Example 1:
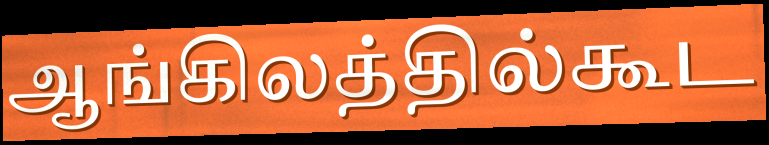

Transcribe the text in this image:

ஆங்கிலத்தில்கூட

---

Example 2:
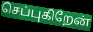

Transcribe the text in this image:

செப்புகிறேன்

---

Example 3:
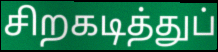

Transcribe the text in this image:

சிறகடித்துப்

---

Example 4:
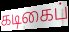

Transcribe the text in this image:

கடிகைப்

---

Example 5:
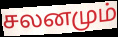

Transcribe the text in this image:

சலனமும்